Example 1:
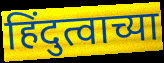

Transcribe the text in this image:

हिंदुत्वाच्या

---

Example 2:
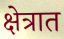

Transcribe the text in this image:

क्षेत्रात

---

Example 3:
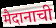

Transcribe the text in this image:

मैदानाची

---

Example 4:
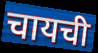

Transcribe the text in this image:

चायची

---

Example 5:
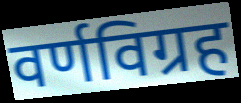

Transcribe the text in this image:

वर्णविग्रह